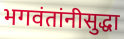
भगवंतांनीसुद्धा